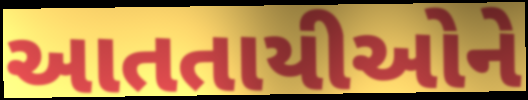
આતતાયીઓને